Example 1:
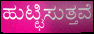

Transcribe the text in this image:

ಹುಟ್ಟಿಸುತ್ತವೆ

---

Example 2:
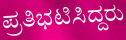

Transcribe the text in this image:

ಪ್ರತಿಭಟಿಸಿದ್ದರು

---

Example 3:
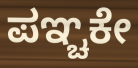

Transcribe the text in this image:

ಪಞ್ಚಕೇ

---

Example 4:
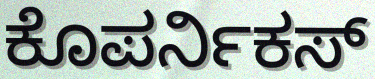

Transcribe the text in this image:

ಕೊಪರ್ನಿಕಸ್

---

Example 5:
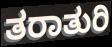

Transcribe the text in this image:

ತರಾತುರಿ